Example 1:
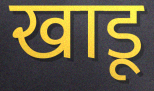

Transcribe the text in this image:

खाडू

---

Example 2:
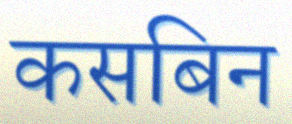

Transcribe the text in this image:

कसबिन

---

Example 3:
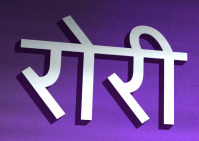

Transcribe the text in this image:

रोरी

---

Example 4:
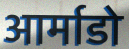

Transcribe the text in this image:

आर्माडो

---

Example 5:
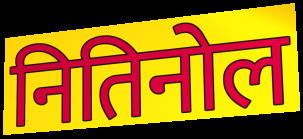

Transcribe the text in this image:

नितिनोल